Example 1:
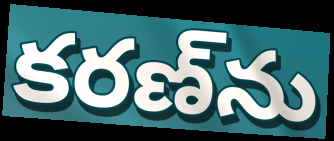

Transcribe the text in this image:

కరణ్‌ను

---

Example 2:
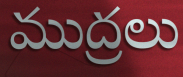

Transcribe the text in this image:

ముద్రలు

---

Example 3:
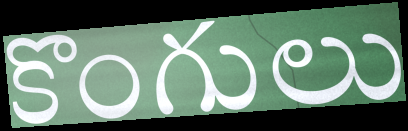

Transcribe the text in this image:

కొంగులు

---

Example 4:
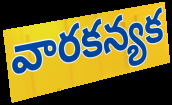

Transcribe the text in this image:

వారకన్యక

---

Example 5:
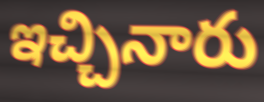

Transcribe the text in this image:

ఇచ్చినారు